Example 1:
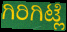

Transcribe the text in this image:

ಗಿರಿಗಿಟ್ಲೆ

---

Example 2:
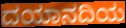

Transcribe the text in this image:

ದಯಾನದಿಯ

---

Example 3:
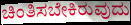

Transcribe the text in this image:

ಚಿಂತಿಸಬೇಕಿರುವುದು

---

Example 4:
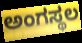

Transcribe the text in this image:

ಅಂಗಸ್ಥಲ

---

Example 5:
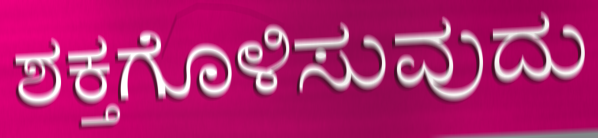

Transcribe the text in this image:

ಶಕ್ತಗೊಳಿಸುವುದು